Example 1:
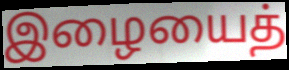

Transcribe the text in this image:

இழையைத்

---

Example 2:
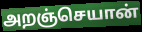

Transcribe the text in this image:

அறஞ்செயான்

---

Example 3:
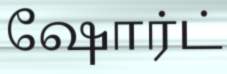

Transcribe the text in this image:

ஷோர்ட்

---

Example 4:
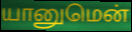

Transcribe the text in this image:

யானுமென்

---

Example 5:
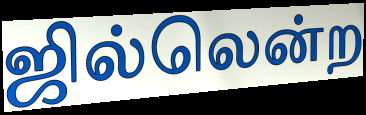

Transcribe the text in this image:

ஜில்லென்ற